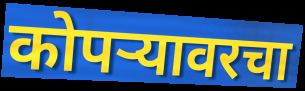
कोपऱ्यावरचा